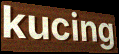
kucing